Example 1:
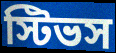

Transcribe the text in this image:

স্টিভস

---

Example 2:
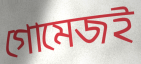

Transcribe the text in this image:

গোমেজই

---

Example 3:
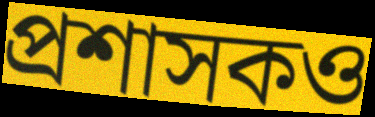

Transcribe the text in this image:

প্রশাসকও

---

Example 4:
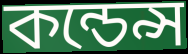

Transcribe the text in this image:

কন্ডেন্স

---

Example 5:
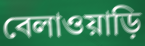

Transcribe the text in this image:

বেলাওয়াড়ি